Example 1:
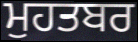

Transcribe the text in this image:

ਮੁਹਤਬਰ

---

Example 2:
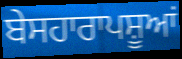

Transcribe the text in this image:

ਬੇਸਹਾਰਾਪਸ਼ੂਆਂ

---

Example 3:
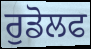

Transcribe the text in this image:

ਰੁਡੋਲਫ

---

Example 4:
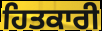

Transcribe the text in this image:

ਹਿਤਕਾਰੀ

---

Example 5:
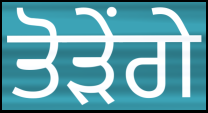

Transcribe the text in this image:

ਤੋੜੇਂਗੇ